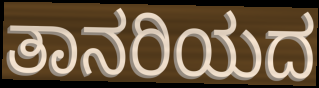
ತಾನರಿಯದ